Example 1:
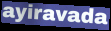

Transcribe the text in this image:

ayiravada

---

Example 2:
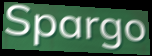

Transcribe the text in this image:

Spargo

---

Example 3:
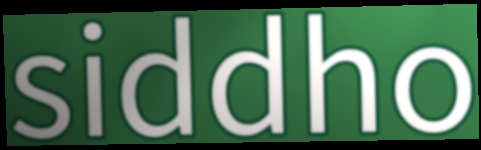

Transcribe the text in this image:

siddho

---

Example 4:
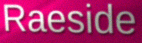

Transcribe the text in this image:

Raeside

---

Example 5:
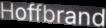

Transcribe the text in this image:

Hoffbrand